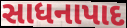
સાધનાપાદ